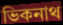
ভিকনাথ